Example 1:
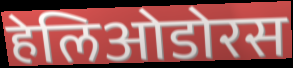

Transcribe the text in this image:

हेलिओडोरस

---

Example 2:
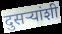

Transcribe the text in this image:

दुसर्‍यांशी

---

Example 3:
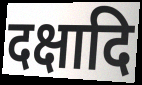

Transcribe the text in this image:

दक्षादि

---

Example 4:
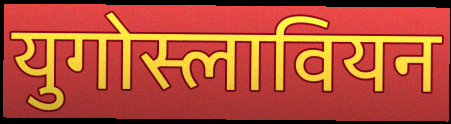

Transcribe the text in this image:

युगोस्लावियन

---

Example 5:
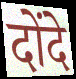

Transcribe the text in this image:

दोंदे